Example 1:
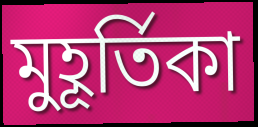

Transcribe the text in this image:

মুহূর্তিকা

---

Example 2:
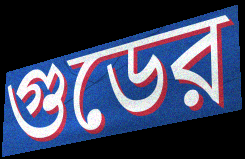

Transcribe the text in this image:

গুডের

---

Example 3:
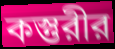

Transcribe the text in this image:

কস্তুরীর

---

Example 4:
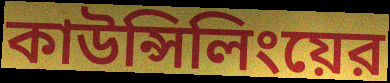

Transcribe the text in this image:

কাউন্সিলিংয়ের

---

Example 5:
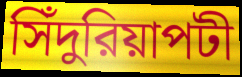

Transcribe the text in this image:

সিঁদুরিয়াপটী